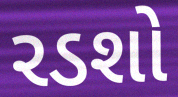
રડશો